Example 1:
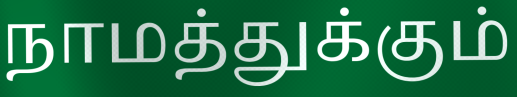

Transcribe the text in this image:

நாமத்துக்கும்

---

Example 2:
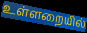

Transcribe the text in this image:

உள்ளறையில்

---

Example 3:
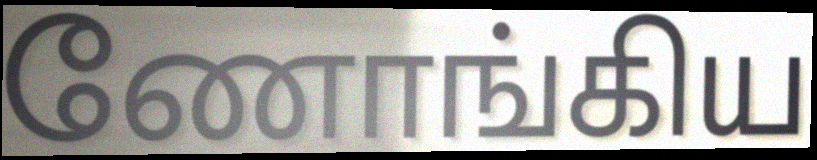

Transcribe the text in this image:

ணோங்கிய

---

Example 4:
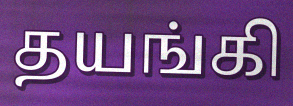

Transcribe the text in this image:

தயங்கி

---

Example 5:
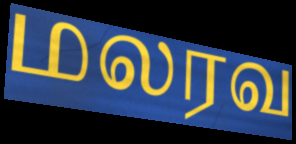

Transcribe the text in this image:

மலரவ